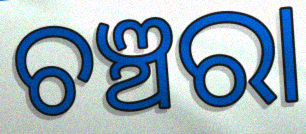
ଚଞ୍ଚରା